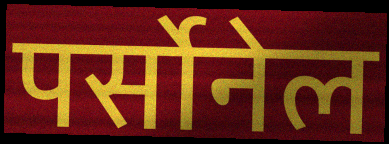
पर्सोनेल